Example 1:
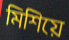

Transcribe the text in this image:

মিশিয়ে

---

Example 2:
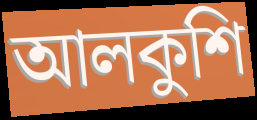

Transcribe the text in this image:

আলকুশি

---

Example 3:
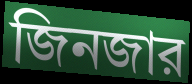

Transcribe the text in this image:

জিনজার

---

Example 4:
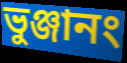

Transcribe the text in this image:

ভুঞ্জানং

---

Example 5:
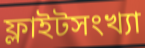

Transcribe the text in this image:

ফ্লাইটসংখ্যা